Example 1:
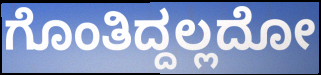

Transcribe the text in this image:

ಗೊಂತಿದ್ದಲ್ಲದೋ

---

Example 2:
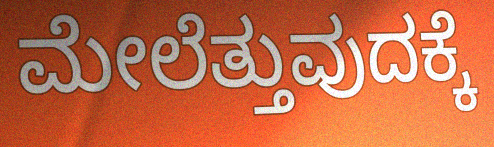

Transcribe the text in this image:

ಮೇಲೆತ್ತುವುದಕ್ಕೆ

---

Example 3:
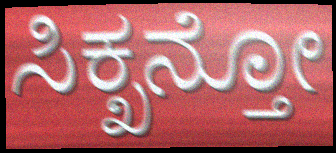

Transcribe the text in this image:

ಸಿಕ್ಖನ್ತೋ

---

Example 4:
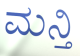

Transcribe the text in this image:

ಮನ್ತಿ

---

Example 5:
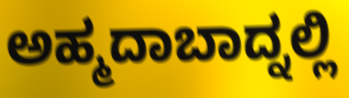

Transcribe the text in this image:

ಅಹ್ಮದಾಬಾದ್ನಲ್ಲಿ